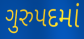
ગુરુપદમાં